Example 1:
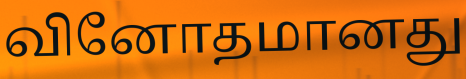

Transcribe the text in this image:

வினோதமானது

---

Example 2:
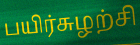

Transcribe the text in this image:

பயிர்சுழற்சி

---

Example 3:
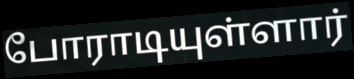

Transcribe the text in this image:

போராடியுள்ளார்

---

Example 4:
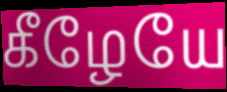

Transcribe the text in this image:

கீழேயே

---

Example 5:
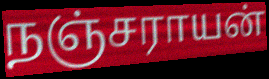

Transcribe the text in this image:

நஞ்சராயன்